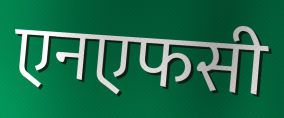
एनएफसी